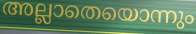
അല്ലാതെയൊന്നും